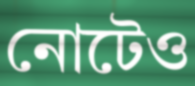
নোটেও